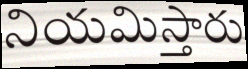
నియమిస్తారు